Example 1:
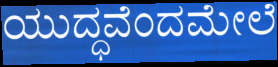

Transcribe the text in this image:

ಯುದ್ಧವೆಂದಮೇಲೆ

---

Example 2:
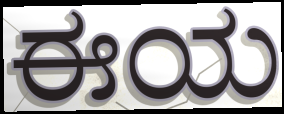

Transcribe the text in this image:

ಈಯ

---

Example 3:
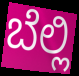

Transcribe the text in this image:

ಬೆಲ್ಲಿ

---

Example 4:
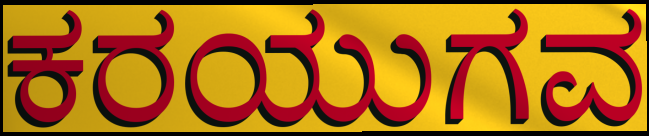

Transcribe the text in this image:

ಕರಯುಗವ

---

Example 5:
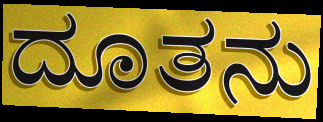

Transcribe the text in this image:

ದೂತನು